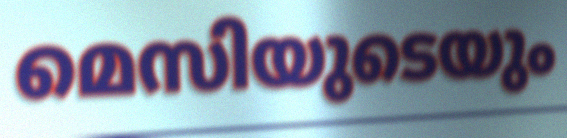
മെസിയുടെയും